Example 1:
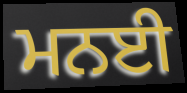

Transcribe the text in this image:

ਮਨਈ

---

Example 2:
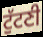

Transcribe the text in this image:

ਟੁੱਟਣੀ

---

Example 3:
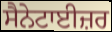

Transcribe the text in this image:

ਸੈਨੇਟਾਈਜ਼ਰ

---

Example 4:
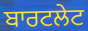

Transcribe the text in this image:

ਬਾਰਟਲੇਟ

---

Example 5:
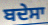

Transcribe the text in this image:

ਬਦੇਸਾ